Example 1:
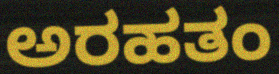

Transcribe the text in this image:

ಅರಹತಂ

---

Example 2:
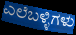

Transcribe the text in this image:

ಎಲೆಬಳ್ಳಿಗಳು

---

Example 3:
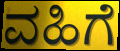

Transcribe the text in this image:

ವಹಿಗೆ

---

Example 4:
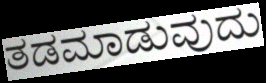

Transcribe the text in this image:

ತಡಮಾಡುವುದು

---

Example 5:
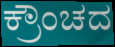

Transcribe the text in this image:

ಕ್ರೌಂಚದ